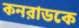
কনরাডকে